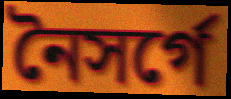
নৈসর্গে